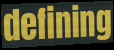
defining